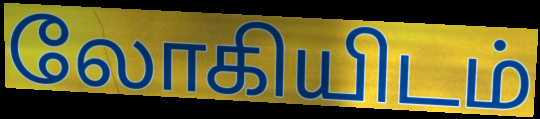
லோகியிடம்